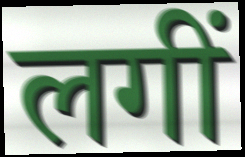
लगीं